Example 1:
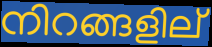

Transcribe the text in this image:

നിറങ്ങളില്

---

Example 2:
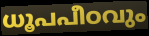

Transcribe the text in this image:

ധൂപപീഠവും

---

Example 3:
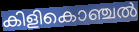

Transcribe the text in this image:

കിളികൊഞ്ചൽ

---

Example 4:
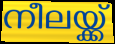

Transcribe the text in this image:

നീലയ്ക്ക്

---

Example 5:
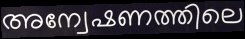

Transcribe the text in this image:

അന്വേഷണത്തിലെ